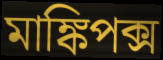
মাঙ্কিপক্স